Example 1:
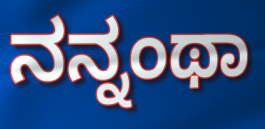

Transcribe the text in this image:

ನನ್ನಂಥಾ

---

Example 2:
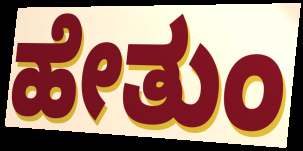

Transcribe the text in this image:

ಹೇತುಂ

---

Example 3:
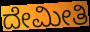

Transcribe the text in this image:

ದೇಮೀತಿ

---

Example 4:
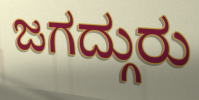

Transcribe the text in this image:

ಜಗದ್ಗುರು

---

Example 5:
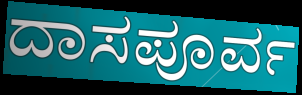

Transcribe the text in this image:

ದಾಸಪೂರ್ವ